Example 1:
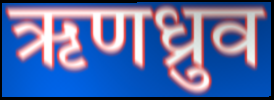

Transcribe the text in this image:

ॠणध्रुव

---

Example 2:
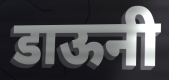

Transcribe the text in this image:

डाऊनी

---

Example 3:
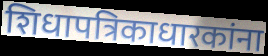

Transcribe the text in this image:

शिधापत्रिकाधारकांना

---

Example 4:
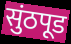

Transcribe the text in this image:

सुंठपूड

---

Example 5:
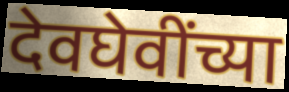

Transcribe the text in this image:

देवघेवींच्या